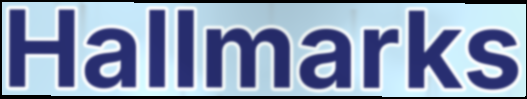
Hallmarks